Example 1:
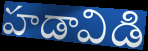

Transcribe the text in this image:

హడావిడి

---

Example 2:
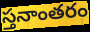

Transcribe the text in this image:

స్తనాంతరం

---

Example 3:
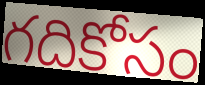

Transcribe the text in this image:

గదికోసం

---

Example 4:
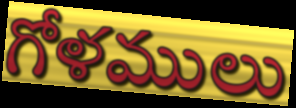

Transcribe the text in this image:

గోళములు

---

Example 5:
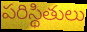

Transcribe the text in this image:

పరిస్థితులు